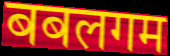
बबलगम